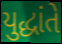
યુદ્ધાંતે